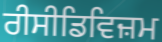
ਰੀਸੀਡਿਵਿਜ਼ਮ